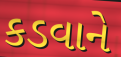
કડવાને